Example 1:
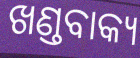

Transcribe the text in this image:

ଖଣ୍ଡବାକ୍ୟ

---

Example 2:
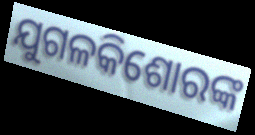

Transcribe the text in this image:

ଯୁଗଳକିଶୋରଙ୍କ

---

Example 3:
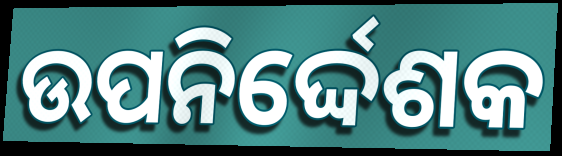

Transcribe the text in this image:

ଉପନିର୍ଦ୍ଦେଶକ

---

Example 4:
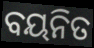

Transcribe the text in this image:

ବୟନିତ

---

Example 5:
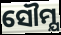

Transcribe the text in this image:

ସୌମ୍ଯ